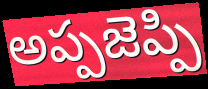
అప్పజెప్పి